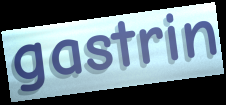
gastrin